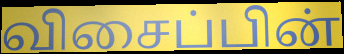
விசைப்பின்